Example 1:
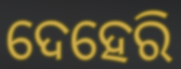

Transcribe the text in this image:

ଦେହେରି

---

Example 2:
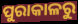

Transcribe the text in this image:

ପୁରାକାଳରୁ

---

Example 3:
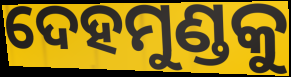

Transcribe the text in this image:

ଦେହମୁଣ୍ଡକୁ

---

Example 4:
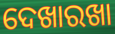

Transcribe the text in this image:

ଦେଖାରଖା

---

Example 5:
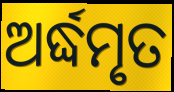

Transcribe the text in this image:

ଅର୍ଦ୍ଧମୃତ